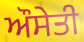
ਔਸੇਤੀ